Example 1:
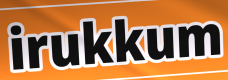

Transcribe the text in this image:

irukkum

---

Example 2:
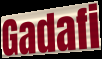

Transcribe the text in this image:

Gadafi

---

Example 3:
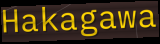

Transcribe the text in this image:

Hakagawa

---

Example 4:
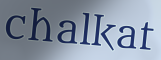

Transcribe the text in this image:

chalkat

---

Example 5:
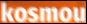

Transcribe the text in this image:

kosmou